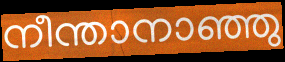
നീന്താനാഞ്ഞു